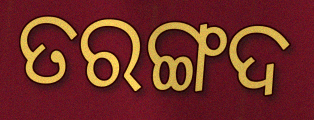
ତରଙ୍ଗଦ